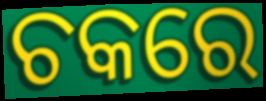
ଚକରେ